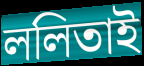
ললিতাই